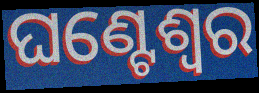
ଘଣ୍ଟେଶ୍ୱର